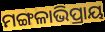
ମଙ୍ଗଳାଭିପ୍ରାୟ